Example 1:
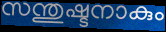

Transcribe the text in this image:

സന്തുഷ്ടനാകും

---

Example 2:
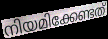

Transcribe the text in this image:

നിയമിക്കേണ്ടത്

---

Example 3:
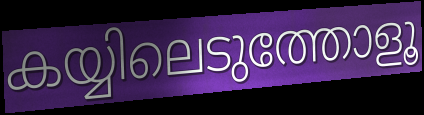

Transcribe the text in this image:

കയ്യിലെടുത്തോളൂ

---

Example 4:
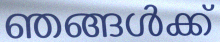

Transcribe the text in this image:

ഞങ്ങൾക്ക്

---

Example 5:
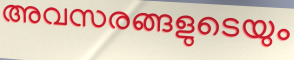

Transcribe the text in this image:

അവസരങ്ങളുടെയും